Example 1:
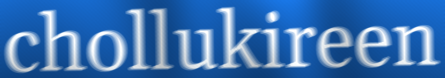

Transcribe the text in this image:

chollukireen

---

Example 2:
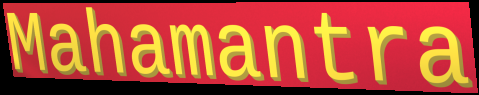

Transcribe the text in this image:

Mahamantra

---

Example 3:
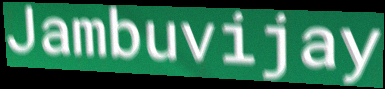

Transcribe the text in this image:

Jambuvijay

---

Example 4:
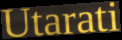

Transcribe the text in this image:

Utarati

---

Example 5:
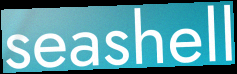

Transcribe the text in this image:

seashell